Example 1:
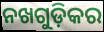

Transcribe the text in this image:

ନଖଗୁଡ଼ିକର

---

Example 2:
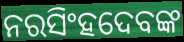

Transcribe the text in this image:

ନରସିଂହଦେବଙ୍କ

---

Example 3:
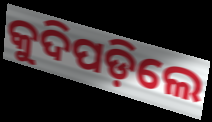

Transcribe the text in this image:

କୁଦିପଡ଼ିଲେ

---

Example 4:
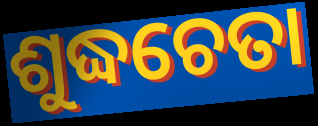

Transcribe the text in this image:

ଶୁଦ୍ଧଚେତା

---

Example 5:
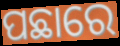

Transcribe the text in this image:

ପଛାରେ